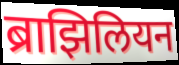
ब्राझिलियन